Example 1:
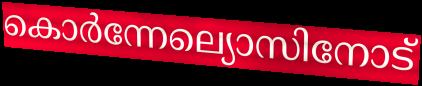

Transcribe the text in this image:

കൊർന്നേല്യൊസിനോട്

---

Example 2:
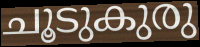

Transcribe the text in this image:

ചൂടുകുരു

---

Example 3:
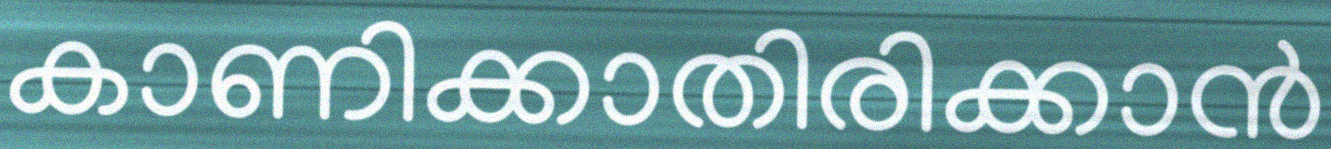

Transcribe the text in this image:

കാണിക്കാതിരിക്കാൻ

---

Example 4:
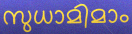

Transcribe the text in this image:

സുധാമിമാം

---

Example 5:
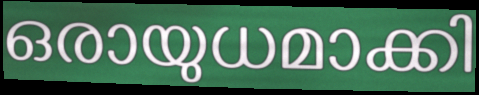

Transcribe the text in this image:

ഒരായുധമാക്കി